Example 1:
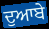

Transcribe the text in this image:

ਦੁਆਬੇ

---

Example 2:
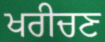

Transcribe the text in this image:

ਖਰੀਚਣ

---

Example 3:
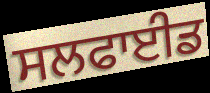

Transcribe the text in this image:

ਸਲਫਾਈਡ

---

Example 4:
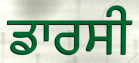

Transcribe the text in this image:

ਡਾਰਸੀ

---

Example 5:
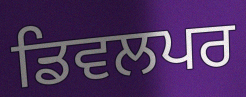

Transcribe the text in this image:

ਡਿਵਲਪਰ